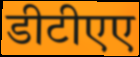
डीटीएए